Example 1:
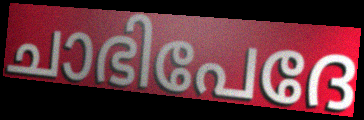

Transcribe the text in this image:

ചാഭിപേദേ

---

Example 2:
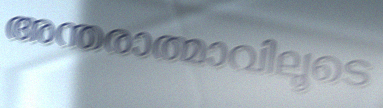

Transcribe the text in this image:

അന്തരാത്മാവിലൂടെ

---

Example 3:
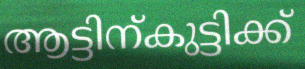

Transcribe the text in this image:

ആട്ടിന്കുട്ടിക്ക്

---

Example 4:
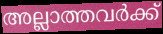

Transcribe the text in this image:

അല്ലാത്തവർക്ക്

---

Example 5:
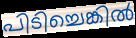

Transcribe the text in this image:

പിടിച്ചെങ്കിൽ